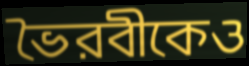
ভৈরবীকেও